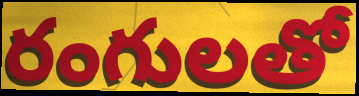
రంగులతో